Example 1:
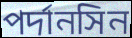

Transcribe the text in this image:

পর্দানসিন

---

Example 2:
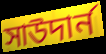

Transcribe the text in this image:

সাউদার্ন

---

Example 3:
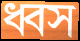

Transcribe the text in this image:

ধ্বস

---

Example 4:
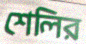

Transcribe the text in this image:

শেলির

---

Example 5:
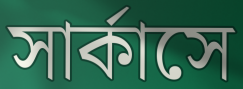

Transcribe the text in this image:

সার্কাসে